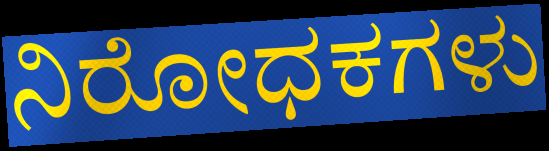
ನಿರೋಧಕಗಳು